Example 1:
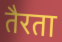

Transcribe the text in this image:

तैरता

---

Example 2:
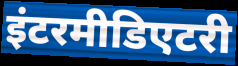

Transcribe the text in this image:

इंटरमीडिएटरी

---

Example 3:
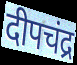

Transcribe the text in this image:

दीपचंद्र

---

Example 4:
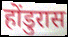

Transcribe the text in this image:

होंडुरास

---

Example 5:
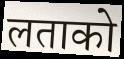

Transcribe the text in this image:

लताको